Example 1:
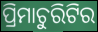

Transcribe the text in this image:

ପ୍ରିମାଚୁରିଟିର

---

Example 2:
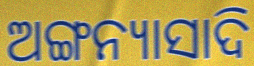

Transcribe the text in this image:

ଅଙ୍ଗନ୍ୟାସାଦି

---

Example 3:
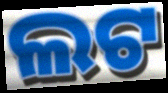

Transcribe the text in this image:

ଲଟ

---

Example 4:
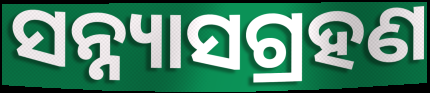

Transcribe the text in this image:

ସନ୍ନ୍ୟାସଗ୍ରହଣ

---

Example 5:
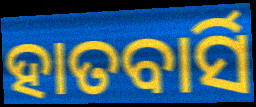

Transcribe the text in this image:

ହାତବାର୍ସି